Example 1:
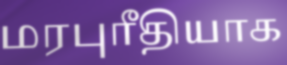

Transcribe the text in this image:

மரபுரீதியாக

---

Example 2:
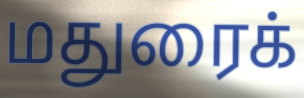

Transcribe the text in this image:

மதுரைக்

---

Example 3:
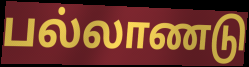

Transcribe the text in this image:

பல்லாணடு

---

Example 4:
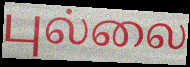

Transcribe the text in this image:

புல்லை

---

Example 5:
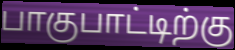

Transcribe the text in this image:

பாகுபாட்டிற்கு